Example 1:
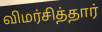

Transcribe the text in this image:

விமர்சித்தார்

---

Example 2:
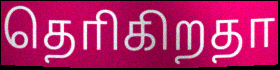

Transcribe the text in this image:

தெரிகிறதா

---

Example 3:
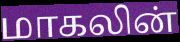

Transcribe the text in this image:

மாகலின்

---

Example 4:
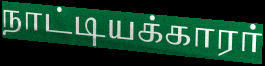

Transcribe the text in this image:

நாட்டியக்காரர்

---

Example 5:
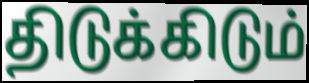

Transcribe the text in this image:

திடுக்கிடும்